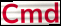
Cmd